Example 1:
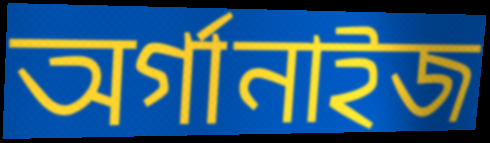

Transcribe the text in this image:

অর্গানাইজ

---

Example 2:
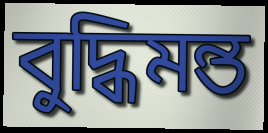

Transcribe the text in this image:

বুদ্ধিমন্ত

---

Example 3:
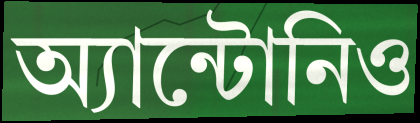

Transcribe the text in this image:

অ্যান্টোনিও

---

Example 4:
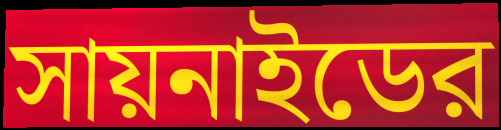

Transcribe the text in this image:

সায়নাইডের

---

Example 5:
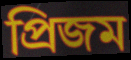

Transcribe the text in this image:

প্রিজম